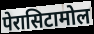
पेरासिटामोल